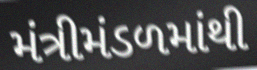
મંત્રીમંડળમાંથી